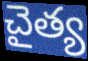
చైత్య